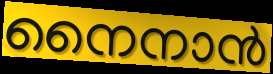
നൈനാൻ